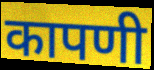
कापणी